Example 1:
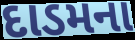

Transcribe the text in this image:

દાડમના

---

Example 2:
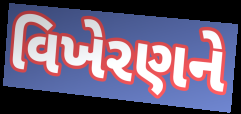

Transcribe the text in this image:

વિખેરણને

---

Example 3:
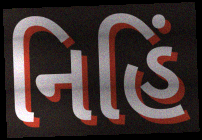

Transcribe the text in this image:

નિહિં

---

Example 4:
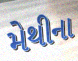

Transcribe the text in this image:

મેથીના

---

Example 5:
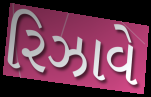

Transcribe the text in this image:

રિઝાવે